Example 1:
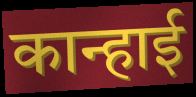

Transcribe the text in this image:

कान्हाई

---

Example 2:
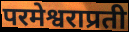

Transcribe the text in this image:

परमेश्वराप्रती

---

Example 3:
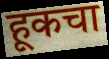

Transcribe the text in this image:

हूकचा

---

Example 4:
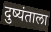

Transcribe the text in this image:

दुष्यंताला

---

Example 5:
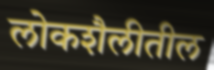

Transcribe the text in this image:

लोकशैलीतील